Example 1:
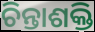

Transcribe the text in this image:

ଚିନ୍ତାଶକ୍ତି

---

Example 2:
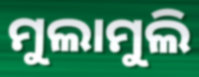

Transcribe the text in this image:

ମୁଲାମୁଲି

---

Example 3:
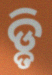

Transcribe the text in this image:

ଡ଼୍ଡି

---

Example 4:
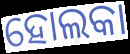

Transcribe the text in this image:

ହୋଲକା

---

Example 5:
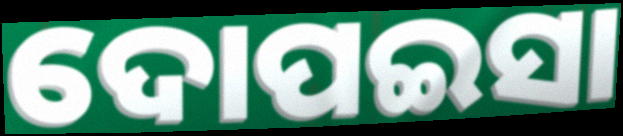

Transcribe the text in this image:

ଦୋପଇସା